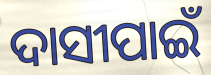
ଦାସୀପାଇଁ